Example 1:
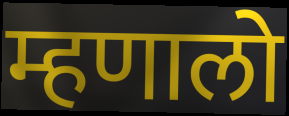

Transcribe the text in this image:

म्हणालो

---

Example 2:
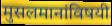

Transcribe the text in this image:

मुसलमानांविषयी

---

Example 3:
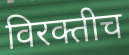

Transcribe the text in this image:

विरक्तीच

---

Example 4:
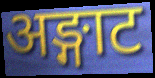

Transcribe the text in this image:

अङ्गाट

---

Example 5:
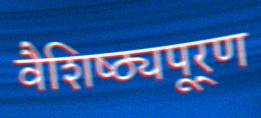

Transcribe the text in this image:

वैशिष्ठ्यपूर्ण